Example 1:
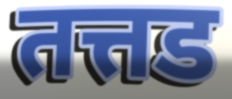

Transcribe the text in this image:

तत्तड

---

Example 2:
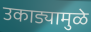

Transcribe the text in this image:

उकाड्यामुळे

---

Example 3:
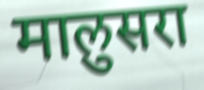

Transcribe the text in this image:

मालुसरा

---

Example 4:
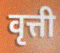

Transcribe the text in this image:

वृत्ती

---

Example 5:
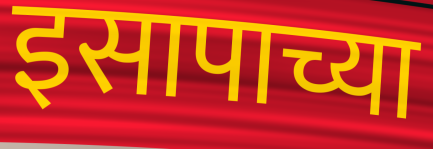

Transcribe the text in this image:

इसापाच्या